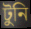
টুনি